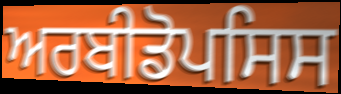
ਅਰਬੀਡੋਪਸਿਸ